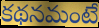
కథనమంటే